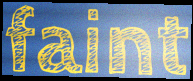
faint